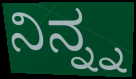
ನಿನ್ನ್ನ